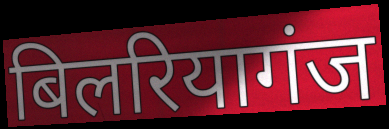
बिलरियागंज